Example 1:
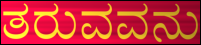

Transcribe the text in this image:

ತರುವವನು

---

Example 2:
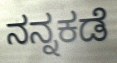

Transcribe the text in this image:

ನನ್ನಕಡೆ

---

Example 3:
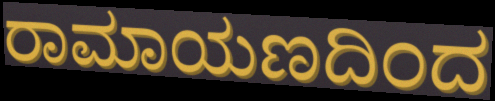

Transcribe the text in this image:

ರಾಮಾಯಣದಿಂದ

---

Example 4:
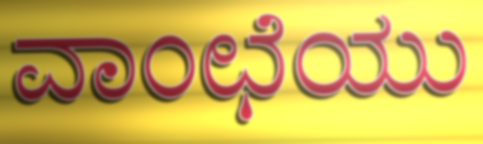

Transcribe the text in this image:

ವಾಂಛೆಯು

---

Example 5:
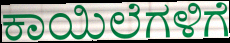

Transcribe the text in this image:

ಕಾಯಿಲೆಗಳಿಗೆ